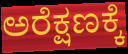
ಅರೆಕ್ಷಣಕ್ಕೆ